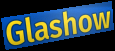
Glashow